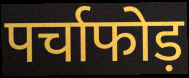
पर्चाफोड़